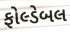
ફોલ્ડેબલ